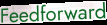
Feedforward